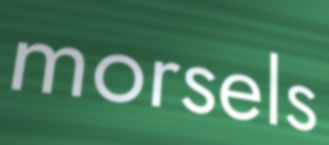
morsels